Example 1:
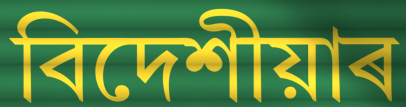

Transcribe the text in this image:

বিদেশীয়াৰ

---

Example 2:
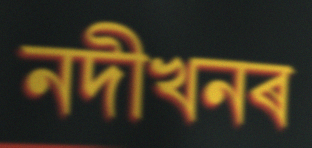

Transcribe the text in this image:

নদীখনৰ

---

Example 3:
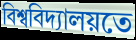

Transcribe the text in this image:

বিশ্ববিদ্যালয়তে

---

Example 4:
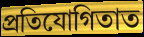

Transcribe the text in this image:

প্ৰতিযোগিতাত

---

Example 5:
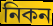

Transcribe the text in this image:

নিকন